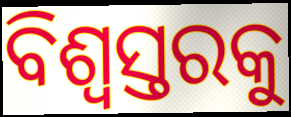
ବିଶ୍ୱସ୍ତରକୁ